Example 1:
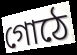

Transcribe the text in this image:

গোঠে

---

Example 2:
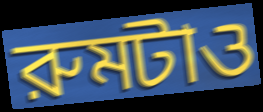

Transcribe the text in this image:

রুমটাও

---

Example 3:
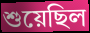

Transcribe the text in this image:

শুয়েছিল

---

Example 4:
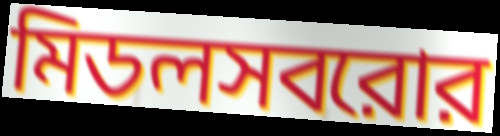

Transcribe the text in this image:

মিডলসবরোর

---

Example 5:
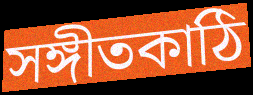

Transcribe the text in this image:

সঙ্গীতকাঠি